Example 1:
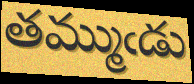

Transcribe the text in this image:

తమ్ముఁడు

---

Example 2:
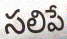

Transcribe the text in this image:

సలిపే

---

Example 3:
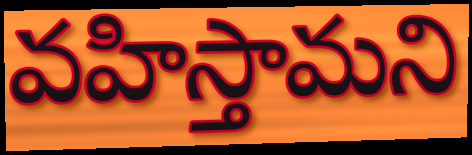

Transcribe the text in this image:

వహిస్తామని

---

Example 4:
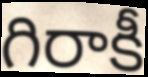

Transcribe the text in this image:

గిరాకీ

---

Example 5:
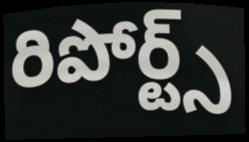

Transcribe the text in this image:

రిపోర్ట్స్